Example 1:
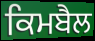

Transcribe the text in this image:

ਕਿਮਬੈਲ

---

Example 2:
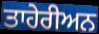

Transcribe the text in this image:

ਤਾਹੇਰੀਅਨ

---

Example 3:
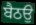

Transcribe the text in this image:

ਬੈਠਉ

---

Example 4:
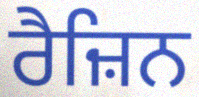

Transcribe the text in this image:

ਰੈਜ਼ਿਨ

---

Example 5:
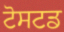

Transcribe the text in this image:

ਟੋਸਟਡ